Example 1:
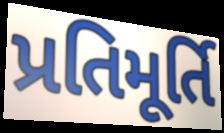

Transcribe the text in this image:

પ્રતિમૂર્તિ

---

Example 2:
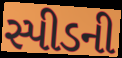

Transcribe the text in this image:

સ્પીડની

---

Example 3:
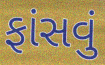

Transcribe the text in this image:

ફાંસવું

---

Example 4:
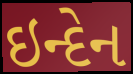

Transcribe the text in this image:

ઇન્દેન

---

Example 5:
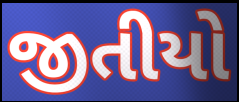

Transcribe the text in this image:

જીતીયો